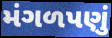
મંગળપણું